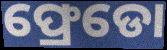
ଫ୍ରେଡୋ